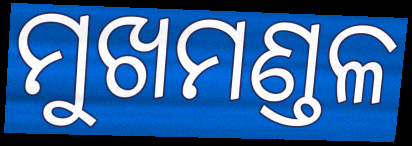
ମୁଖମଣ୍ଡଳ